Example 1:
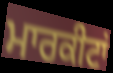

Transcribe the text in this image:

ਮਾਰਕੀਟਾਂ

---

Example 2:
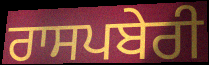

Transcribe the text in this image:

ਰਾਸਪਬੇਰੀ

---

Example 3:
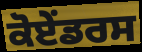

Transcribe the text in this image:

ਕੋਏਂਡਰਸ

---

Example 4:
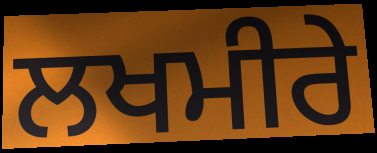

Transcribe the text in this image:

ਲਖਮੀਰੇ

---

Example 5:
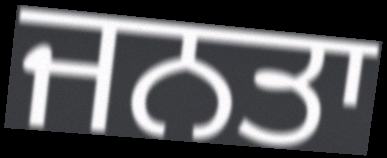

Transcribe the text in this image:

ਜਨਤਾ